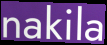
nakila